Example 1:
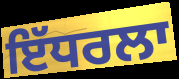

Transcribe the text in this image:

ਇੱਧਰਲਾ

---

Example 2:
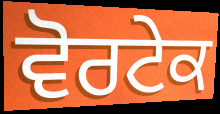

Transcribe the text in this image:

ਵੋਰਟੇਕ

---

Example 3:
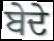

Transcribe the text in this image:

ਬੇਦੇ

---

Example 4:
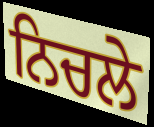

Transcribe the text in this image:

ਨਿਚਲੇ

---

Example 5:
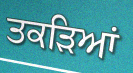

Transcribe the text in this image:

ਤਕੜਿਆਂ